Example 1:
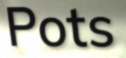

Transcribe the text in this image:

Pots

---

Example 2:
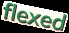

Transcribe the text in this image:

flexed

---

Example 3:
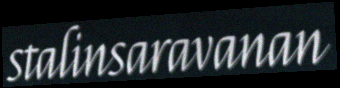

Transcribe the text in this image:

stalinsaravanan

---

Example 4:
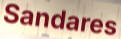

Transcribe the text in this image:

Sandares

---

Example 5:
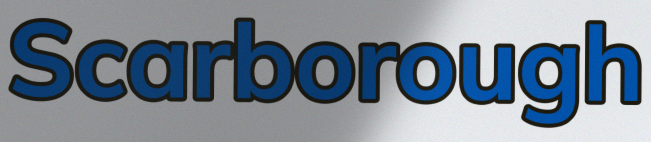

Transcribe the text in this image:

Scarborough